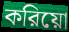
করিয়ো